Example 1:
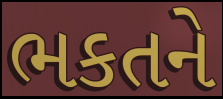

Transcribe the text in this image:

ભકતને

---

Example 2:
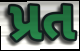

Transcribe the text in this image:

પ્રત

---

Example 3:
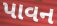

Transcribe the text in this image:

પાવન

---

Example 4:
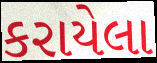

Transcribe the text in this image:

કરાયેલા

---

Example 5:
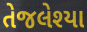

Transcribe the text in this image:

તેજલેશ્યા